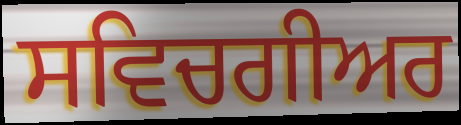
ਸਵਿਚਗੀਅਰ